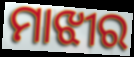
ମାଝୀର